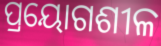
ପ୍ରୟୋଗଶୀଳ